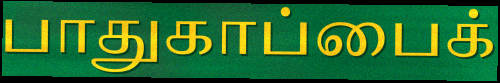
பாதுகாப்பைக்